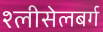
श्लीसेलबर्ग